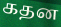
கதன